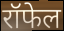
रॉफेल